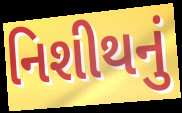
નિશીથનું